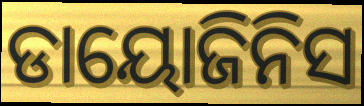
ଡାୟୋଜିନିସ